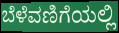
ಬೆಳೆವಣಿಗೆಯಲ್ಲಿ